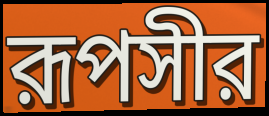
রূপসীর